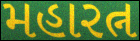
મહારત્ન